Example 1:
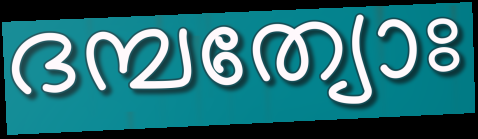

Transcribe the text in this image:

ദമ്പത്യോഃ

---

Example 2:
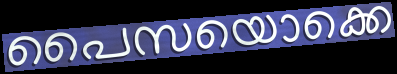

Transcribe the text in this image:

പൈസയൊക്കെ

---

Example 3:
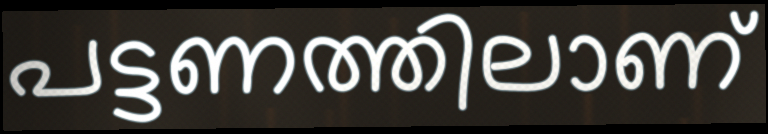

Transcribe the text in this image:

പട്ടണത്തിലാണ്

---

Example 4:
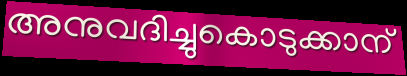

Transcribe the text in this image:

അനുവദിച്ചുകൊടുക്കാന്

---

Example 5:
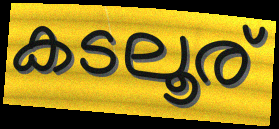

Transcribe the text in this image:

കടലൂര്